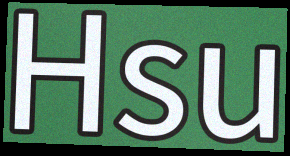
Hsu